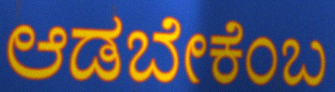
ಆಡಬೇಕೆಂಬ